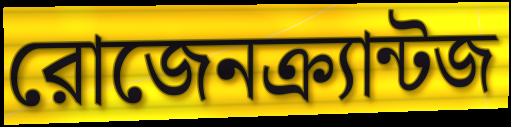
রোজেনক্র্যান্টজ